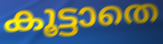
കൂട്ടാതെ